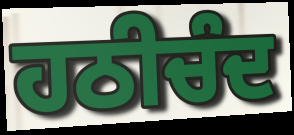
ਹਠੀਚੰਦ